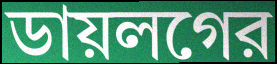
ডায়লগের